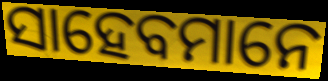
ସାହେବମାନେ